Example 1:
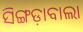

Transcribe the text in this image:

ସିଙ୍ଗଡ଼ାବାଲା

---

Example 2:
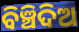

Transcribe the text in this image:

ବିଞ୍ଚିଦିଅ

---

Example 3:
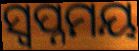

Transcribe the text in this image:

ସ୍ଵପ୍ନମୟ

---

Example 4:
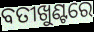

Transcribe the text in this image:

ବତୀଖୁଣ୍ଟରେ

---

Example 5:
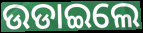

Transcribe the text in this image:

ଉଡାଇଲେ